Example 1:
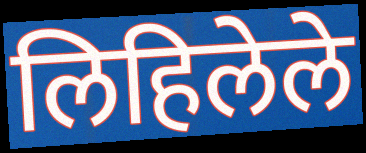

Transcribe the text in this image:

लिहिलेले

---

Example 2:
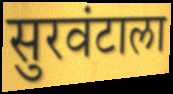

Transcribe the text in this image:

सुरवंटाला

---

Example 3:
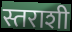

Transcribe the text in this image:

स्तराशी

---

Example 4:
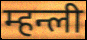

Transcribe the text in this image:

म्हन्ली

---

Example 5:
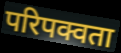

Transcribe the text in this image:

परिपक्वता